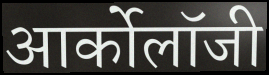
आर्कोलॉजी